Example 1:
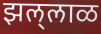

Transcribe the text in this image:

झल्लाळ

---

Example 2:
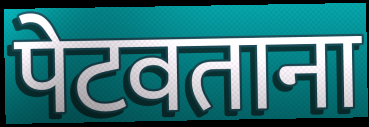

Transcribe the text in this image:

पेटवताना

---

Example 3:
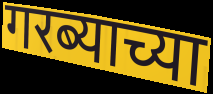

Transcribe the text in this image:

गरब्याच्या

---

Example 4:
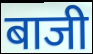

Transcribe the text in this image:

बाजी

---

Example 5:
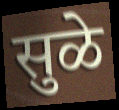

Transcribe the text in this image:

सुळे